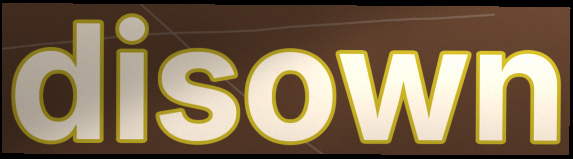
disown